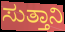
ಸುತ್ತಾನಿ